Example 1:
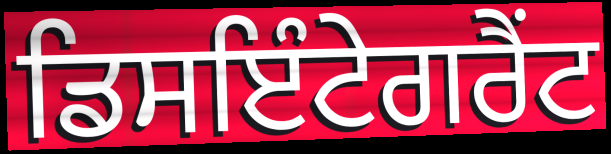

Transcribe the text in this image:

ਡਿਸਇੰਟੇਗਰੈਂਟ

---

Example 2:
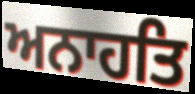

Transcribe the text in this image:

ਅਨਾਹਤਿ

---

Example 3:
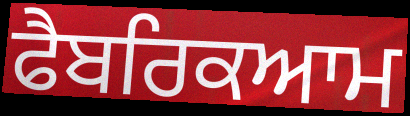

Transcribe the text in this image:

ਫੈਬਰਿਕਆਮ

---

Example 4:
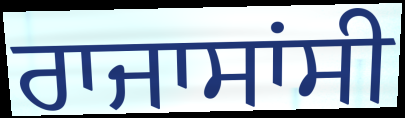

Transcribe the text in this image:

ਰਾਜਾਸਾਂਸੀ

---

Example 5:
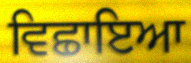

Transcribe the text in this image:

ਵਿਛਾਇਆ